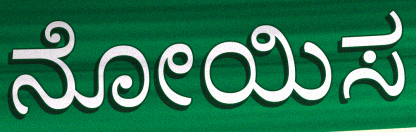
ನೋಯಿಸ